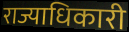
राज्याधिकारी